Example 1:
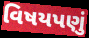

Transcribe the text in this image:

વિષયપણું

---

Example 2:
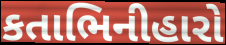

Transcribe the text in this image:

કતાભિનીહારો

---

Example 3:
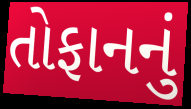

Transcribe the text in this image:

તોફાનનું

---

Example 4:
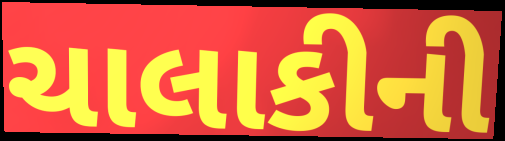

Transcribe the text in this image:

ચાલાકીની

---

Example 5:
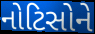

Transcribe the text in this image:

નોટિસોને